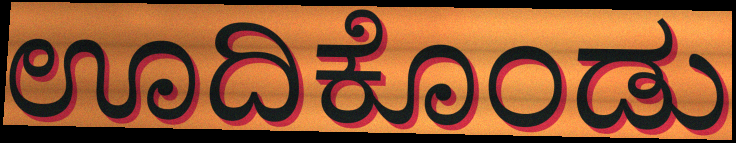
ಊದಿಕೊಂಡು